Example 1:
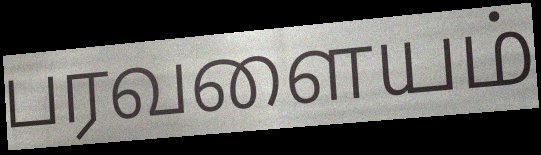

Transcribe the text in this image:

பரவளையம்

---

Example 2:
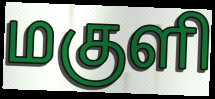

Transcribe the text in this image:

மகுளி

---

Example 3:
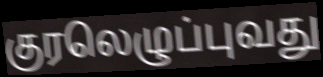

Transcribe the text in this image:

குரலெழுப்புவது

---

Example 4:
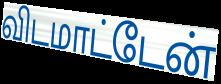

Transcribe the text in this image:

விடமாட்டேன்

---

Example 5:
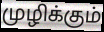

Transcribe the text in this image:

முழிக்கும்